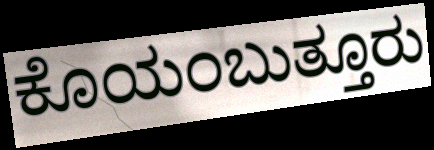
ಕೊಯಂಬುತ್ತೂರು